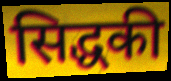
सिद्धकी